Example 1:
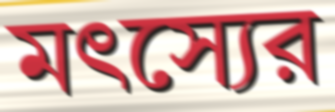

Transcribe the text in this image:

মৎস্যের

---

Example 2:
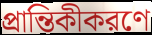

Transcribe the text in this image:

প্রান্তিকীকরণে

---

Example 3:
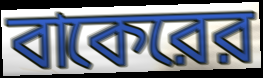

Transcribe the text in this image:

বাকেরের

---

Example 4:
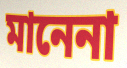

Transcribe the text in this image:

মানেনা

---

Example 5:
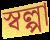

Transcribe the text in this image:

স্বল্পা